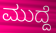
ಮುದ್ದೆ